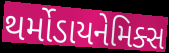
થર્મોડાયનેમિક્સ